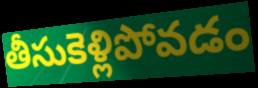
తీసుకెళ్లిపోవడం